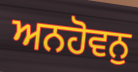
ਅਨਹੋਵਨੁ